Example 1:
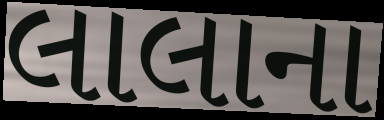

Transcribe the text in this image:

લાલાના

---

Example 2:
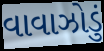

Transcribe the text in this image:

વાવાઝોડું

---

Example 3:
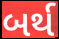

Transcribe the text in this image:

બર્થ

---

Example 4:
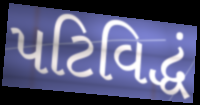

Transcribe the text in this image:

પટિવિદ્ધં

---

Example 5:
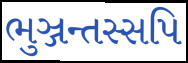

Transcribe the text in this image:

ભુઞ્જન્તસ્સપિ